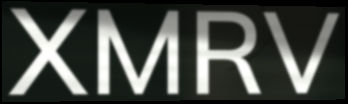
XMRV